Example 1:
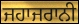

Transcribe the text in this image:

ਜਹਾਜਰਾਨੀ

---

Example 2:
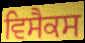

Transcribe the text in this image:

ਵਿਸੈਕਸ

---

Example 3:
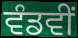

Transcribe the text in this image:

ਵੰਡਵੀਂ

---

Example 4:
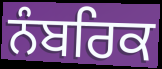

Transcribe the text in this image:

ਨੰਬਰਿਕ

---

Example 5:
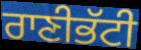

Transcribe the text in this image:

ਰਾਣੀਭੱਟੀ